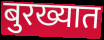
बुरख्यात